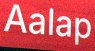
Aalap